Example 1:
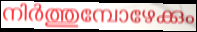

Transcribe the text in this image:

നിർത്തുമ്പോഴേക്കും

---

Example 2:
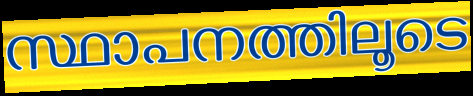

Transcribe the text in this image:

സ്ഥാപനത്തിലൂടെ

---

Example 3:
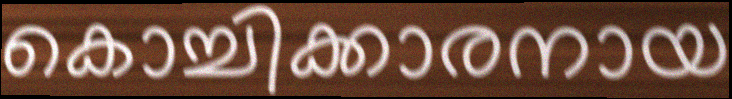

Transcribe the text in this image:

കൊച്ചിക്കാരനായ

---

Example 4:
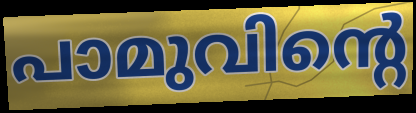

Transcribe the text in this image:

പാമുവിന്റെ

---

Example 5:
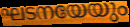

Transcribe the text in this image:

ഘടനയേയും